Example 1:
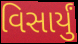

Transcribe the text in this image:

વિસાર્યું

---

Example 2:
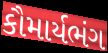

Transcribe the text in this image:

કૌમાર્યભંગ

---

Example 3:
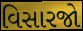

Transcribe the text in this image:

વિસારજો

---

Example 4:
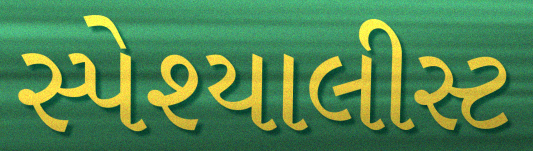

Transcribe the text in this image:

સ્પેશ્યાલીસ્ટ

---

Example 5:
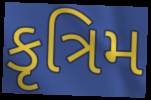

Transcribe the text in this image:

કૃત્રિમ